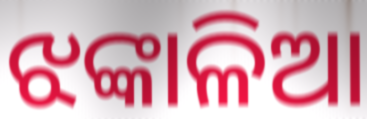
ଝଙ୍କାଳିଆ